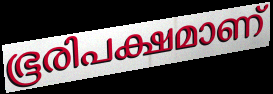
ഭൂരിപക്ഷമാണ്